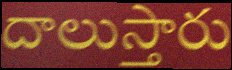
దాలుస్తారు